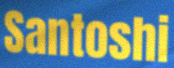
Santoshi